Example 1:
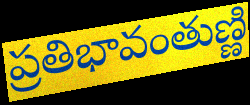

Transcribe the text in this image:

ప్రతిభావంతుణ్ణి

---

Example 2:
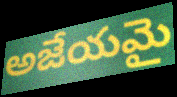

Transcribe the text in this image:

అజేయమై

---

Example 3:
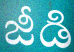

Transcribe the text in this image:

జీడి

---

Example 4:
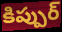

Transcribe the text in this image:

కిప్పుర్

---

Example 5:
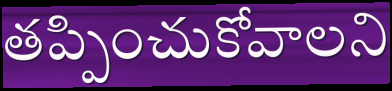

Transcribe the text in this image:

తప్పించుకోవాలని